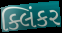
ક્લિંકર